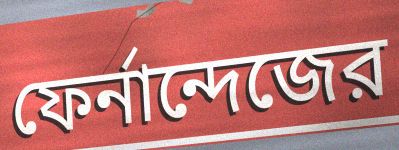
ফের্নান্দেজের